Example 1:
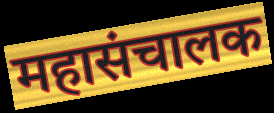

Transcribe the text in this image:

महासंचालक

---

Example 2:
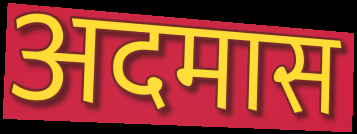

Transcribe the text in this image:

अदमास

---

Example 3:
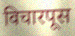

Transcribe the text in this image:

विचारपूस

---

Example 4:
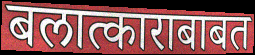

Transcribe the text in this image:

बलात्काराबाबत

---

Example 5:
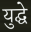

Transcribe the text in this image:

युद्घे